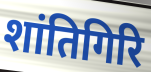
शांतिगिरि